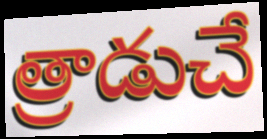
త్రాడుచే